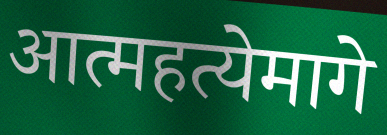
आत्महत्येमागे